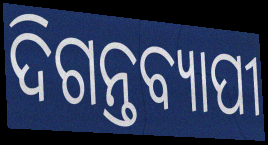
ଦିଗନ୍ତବ୍ୟାପୀ